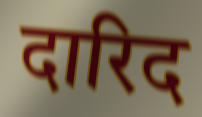
दारिद